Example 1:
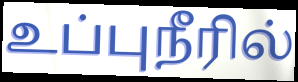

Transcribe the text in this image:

உப்புநீரில்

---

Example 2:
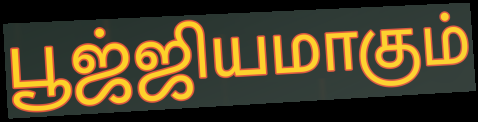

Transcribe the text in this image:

பூஜ்ஜியமாகும்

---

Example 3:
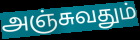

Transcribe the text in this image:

அஞ்சுவதும்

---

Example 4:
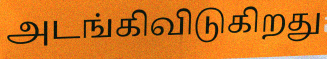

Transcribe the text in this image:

அடங்கிவிடுகிறது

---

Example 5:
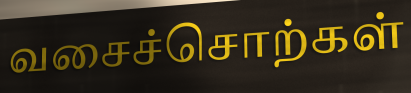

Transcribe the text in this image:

வசைச்சொற்கள்